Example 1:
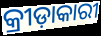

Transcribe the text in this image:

କ୍ରୀଡ଼ାକାରୀ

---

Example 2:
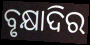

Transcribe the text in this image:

ବୃକ୍ଷାଦିର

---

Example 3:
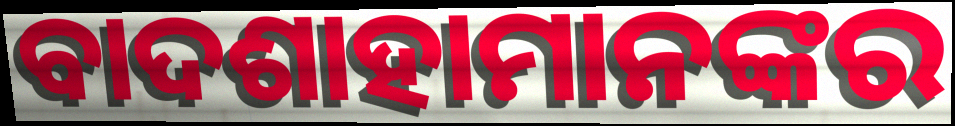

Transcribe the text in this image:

ବାଦଶାହାମାନଙ୍କର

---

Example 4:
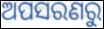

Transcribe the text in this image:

ଅପସରଣରୁ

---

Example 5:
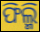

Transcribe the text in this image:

ଫିଲ୍ମି